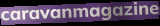
caravanmagazine